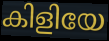
കിളിയേ